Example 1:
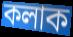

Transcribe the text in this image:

কলাক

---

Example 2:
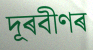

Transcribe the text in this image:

দূৰবীণৰ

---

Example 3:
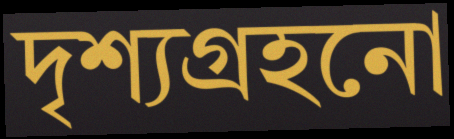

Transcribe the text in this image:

দৃশ্যগ্ৰহনো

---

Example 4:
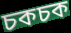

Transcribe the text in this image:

চকচক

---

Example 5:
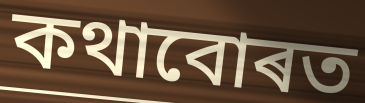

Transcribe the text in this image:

কথাবোৰত